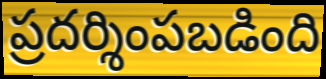
ప్రదర్శింపబడింది